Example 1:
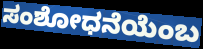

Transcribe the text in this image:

ಸಂಶೋಧನೆಯೆಂಬ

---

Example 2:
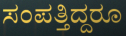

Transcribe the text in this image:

ಸಂಪತ್ತಿದ್ದರೂ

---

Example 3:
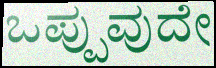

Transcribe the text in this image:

ಒಪ್ಪುವುದೇ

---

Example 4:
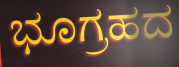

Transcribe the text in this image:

ಭೂಗ್ರಹದ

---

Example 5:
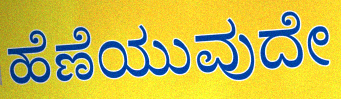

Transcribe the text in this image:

ಹೆಣೆಯುವುದೇ